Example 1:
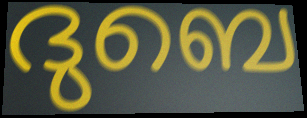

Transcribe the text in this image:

ദുബെ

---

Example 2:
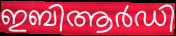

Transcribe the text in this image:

ഇബിആർഡി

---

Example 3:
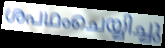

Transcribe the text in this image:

ശപഥംചെയ്യിച്ചു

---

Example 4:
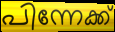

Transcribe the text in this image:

പിന്നേക്ക്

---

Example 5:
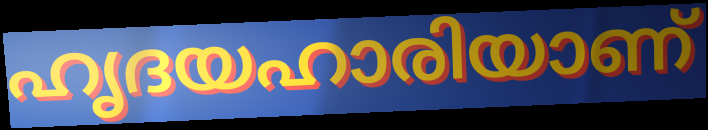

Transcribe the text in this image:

ഹൃദയഹാരിയാണ്